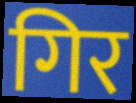
गिर